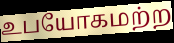
உபயோகமற்ற